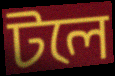
টলে